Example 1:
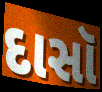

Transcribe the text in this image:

દાસૉ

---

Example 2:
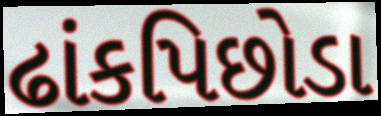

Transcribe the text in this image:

ઢાંકપિછોડા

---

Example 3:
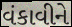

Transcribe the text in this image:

વંકાવીને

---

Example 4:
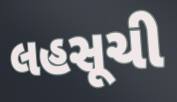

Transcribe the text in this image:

લહસૂચી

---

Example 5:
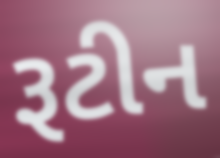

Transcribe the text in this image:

રૂટીન